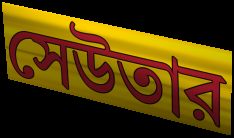
সেউতার